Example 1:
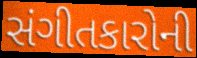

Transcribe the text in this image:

સંગીતકારોની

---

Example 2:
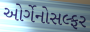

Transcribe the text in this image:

ઓર્ગેનોસલ્ફર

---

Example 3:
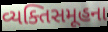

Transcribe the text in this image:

વ્યક્તિસમૂહના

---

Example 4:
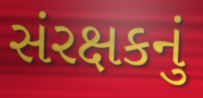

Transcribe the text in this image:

સંરક્ષકનું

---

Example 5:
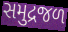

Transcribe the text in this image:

સમુદ્રજળ